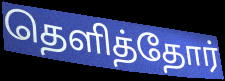
தெளித்தோர்